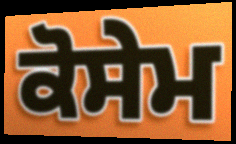
ਕੋਸੇਮ